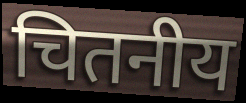
चितनीय